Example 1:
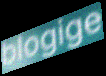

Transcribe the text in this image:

blogige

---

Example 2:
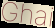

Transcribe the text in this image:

Ghai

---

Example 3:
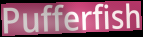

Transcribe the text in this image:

Pufferfish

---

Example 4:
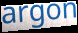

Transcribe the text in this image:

argon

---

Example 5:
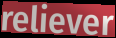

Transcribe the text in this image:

reliever